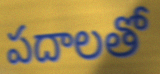
పదాలతో